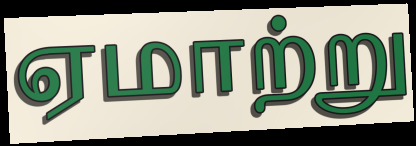
ஏமாற்று